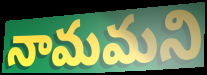
నామమని